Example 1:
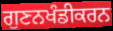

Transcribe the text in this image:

ਗੁਣਨਖੰਡੀਕਰਨ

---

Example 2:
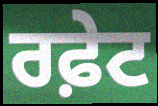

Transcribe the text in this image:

ਰਫ਼ੇਟ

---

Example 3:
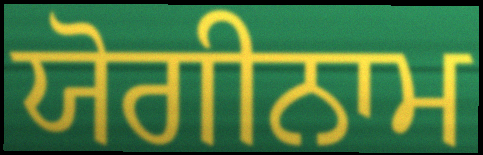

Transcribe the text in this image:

ਯੋਗੀਨਾਮ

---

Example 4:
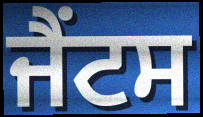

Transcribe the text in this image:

ਜੈਂਟਸ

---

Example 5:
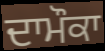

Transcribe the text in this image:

ਦਾਮੌਕਾ